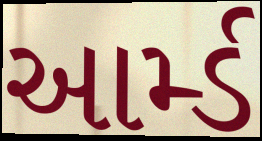
આર્મ્ડ